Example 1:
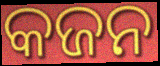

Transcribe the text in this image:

କଜନ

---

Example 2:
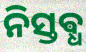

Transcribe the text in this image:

ନିସ୍ତଵ୍ଧ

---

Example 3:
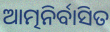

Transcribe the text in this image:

ଆତ୍ମନିର୍ବାସିତ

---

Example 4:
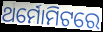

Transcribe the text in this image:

ଥର୍ମୋମିଟରେ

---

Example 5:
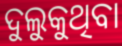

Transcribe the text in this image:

ଦୁଲୁକୁଥିବା